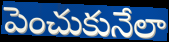
పెంచుకునేలా